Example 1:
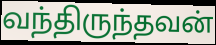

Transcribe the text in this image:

வந்திருந்தவன்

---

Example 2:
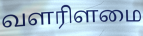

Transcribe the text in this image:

வளரிளமை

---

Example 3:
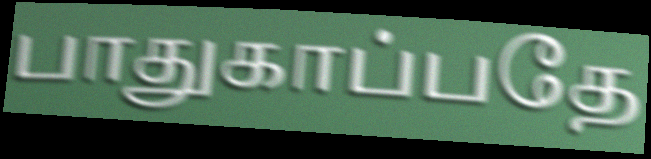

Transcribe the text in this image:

பாதுகாப்பதே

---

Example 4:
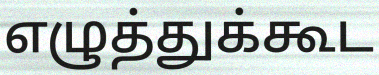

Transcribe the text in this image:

எழுத்துக்கூட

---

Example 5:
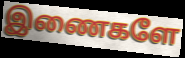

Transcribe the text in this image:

இணைகளே